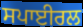
ਸਪਾਈਰਲ